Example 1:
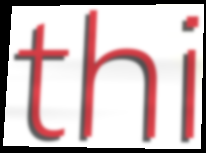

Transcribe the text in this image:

thi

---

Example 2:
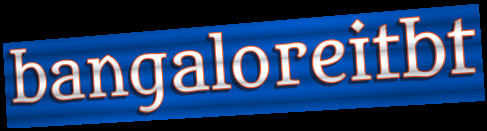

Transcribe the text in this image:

bangaloreitbt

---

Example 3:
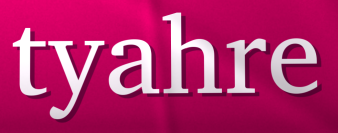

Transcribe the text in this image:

tyahre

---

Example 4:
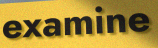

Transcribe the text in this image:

examine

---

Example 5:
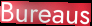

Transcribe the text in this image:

Bureaus